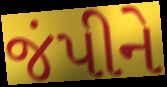
જંપીને